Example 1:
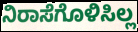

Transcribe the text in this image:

ನಿರಾಸೆಗೊಳಿಸಿಲ್ಲ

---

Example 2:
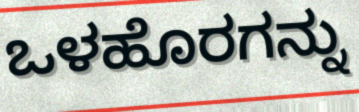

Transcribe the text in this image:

ಒಳಹೊರಗನ್ನು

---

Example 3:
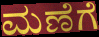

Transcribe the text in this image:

ಮಣೆಗೆ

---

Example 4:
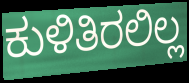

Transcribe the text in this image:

ಕುಳಿತಿರಲಿಲ್ಲ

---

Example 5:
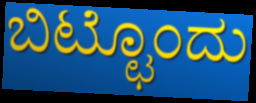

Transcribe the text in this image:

ಬಿಟ್ಟೊಂದು